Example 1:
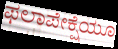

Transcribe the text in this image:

ಫಲಾಪೇಕ್ಷೆಯೂ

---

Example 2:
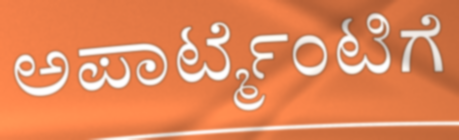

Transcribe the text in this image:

ಅಪಾರ್ಟ್ಮೆಂಟಿಗೆ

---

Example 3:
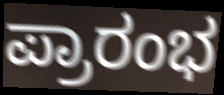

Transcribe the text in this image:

ಪ್ರಾರಂಭ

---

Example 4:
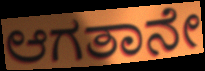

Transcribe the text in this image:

ಆಗತಾನೇ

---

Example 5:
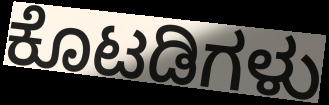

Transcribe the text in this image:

ಕೊಟಡಿಗಳು